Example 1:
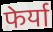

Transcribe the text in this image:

फेर्या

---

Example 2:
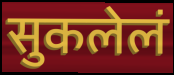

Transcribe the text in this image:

सुकलेलं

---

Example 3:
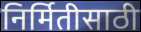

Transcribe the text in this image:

निर्मितीसाठी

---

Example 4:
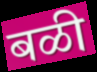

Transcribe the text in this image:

बळी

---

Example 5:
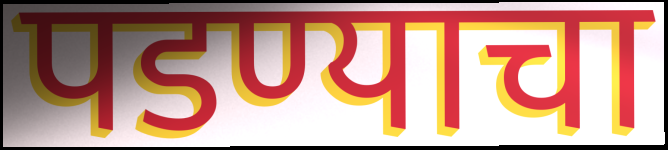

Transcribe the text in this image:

पडण्याचा